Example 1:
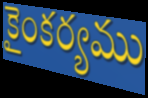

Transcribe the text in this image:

కైంకర్యము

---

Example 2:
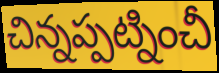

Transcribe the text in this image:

చిన్నప్పట్నించీ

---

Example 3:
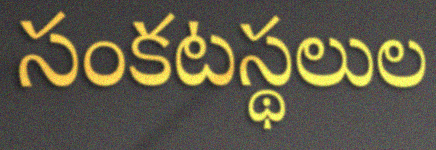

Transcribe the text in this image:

సంకటస్థలుల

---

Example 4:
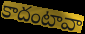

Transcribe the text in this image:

కాదంటావా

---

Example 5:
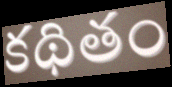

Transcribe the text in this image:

కథితం